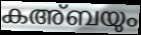
കഅ്ബയും